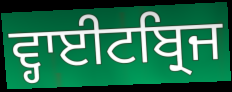
ਵ੍ਹਾਈਟਬ੍ਰਿਜ